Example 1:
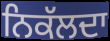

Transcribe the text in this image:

ਨਿਕੱਲਦਾ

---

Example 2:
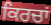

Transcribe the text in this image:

ਕਿਰਚਾਂ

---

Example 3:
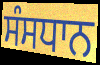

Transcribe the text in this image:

ਸੰਸਧਾਨ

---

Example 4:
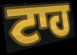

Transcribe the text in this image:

ਟਾਹ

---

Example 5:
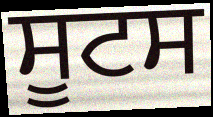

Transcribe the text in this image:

ਸੂਟਸ